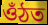
ওঁঠত